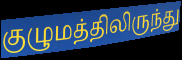
குழுமத்திலிருந்து